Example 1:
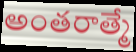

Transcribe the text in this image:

అంతరాత్మే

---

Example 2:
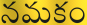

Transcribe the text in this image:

నమకం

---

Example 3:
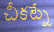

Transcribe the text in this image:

చీకట్నే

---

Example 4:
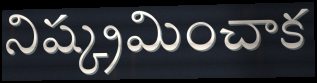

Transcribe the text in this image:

నిష్క్రమించాక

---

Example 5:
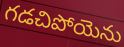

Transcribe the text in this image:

గడచిపోయెను